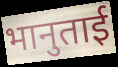
भानुताई